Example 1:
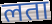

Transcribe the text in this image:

लता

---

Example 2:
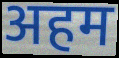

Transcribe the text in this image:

अहम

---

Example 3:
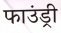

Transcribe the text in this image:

फाउंड्री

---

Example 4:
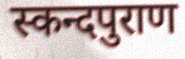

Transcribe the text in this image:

स्कन्दपुराण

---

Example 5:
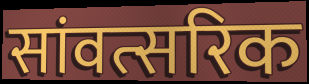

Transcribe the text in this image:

सांवत्सरिक